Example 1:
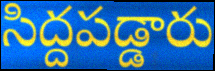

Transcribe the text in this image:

సిద్దపడ్డారు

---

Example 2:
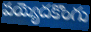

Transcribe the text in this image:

పయ్యెదకొంగు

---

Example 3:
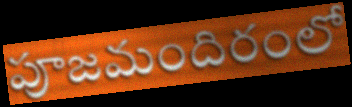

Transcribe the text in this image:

పూజమందిరంలో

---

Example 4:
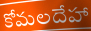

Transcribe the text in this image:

కోమలదేహా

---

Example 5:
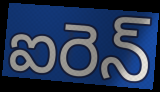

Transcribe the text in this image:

ఐరెన్